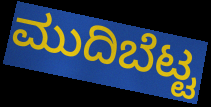
ಮುದಿಬೆಟ್ಟ